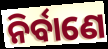
ନିର୍ବାଣେ